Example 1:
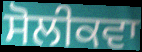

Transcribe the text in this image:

ਸੋਲੀਕਵਾ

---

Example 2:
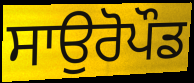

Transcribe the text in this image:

ਸਾਉਰੋਪੌਡ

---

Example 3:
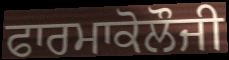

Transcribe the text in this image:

ਫਾਰਮਾਕੋਲੌਜੀ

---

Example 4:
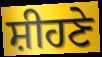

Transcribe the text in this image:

ਸ਼ੀਹਣੇ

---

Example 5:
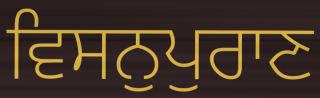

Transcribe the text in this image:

ਵਿਸਨੁਪੁਰਾਣ